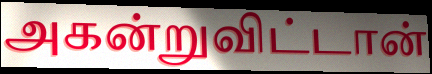
அகன்றுவிட்டான்